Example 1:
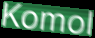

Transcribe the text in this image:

Komol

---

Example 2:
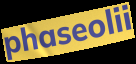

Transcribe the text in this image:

phaseolii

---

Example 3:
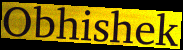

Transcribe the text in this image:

Obhishek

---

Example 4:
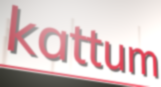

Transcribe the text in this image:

kattum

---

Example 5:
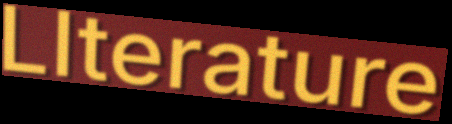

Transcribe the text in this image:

LIterature